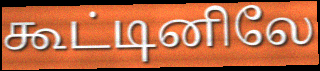
கூட்டினிலே